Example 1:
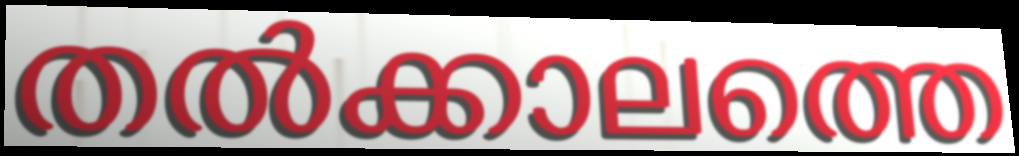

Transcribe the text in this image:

തൽക്കാലത്തെ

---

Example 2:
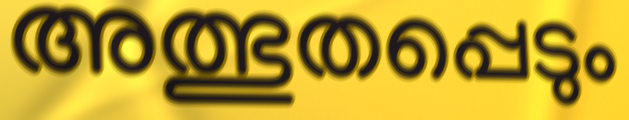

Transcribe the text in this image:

അത്ഭുതപ്പെടും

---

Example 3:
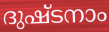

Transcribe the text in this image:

ദുഷ്ടനാം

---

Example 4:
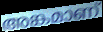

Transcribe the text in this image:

അങ്കമാണ്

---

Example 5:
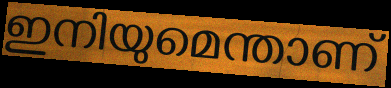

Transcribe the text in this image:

ഇനിയുമെന്താണ്